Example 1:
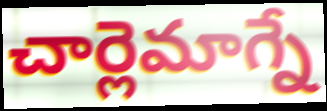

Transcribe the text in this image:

చార్లెమాగ్నే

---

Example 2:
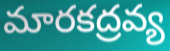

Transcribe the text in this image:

మారకద్రవ్య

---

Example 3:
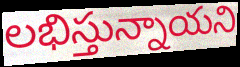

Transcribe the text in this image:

లభిస్తున్నాయని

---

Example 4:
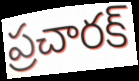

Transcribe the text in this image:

ప్రచారక్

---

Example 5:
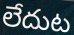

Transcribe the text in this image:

లేదుట